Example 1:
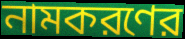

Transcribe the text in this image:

নামকরণের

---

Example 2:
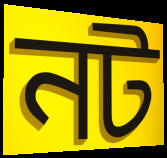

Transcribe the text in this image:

নট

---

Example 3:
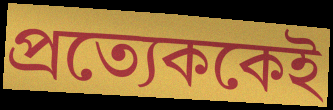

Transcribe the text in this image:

প্রত্যেককেই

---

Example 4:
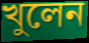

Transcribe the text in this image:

খুলেন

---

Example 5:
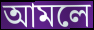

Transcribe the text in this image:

আমলে